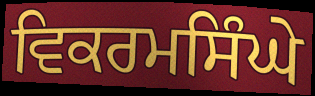
ਵਿਕਰਮਸਿੰਘੇ